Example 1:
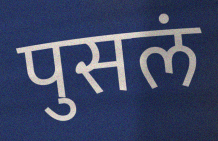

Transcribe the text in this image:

पुसलं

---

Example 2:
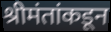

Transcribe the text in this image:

श्रीमंतांकडून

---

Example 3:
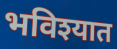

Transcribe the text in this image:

भविश्यात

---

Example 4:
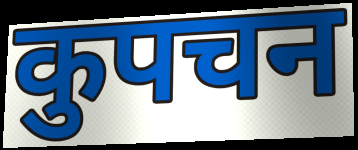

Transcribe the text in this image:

कुपचन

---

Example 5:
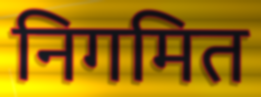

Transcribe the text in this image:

निगमित